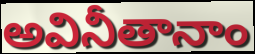
అవినీతానాం